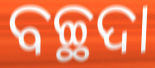
ବଚ୍ଛଦା